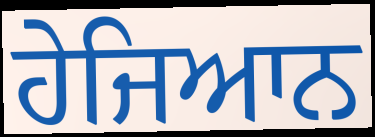
ਹੇਜਿਆਨ